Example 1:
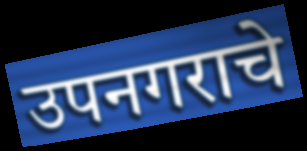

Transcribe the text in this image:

उपनगराचे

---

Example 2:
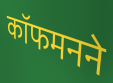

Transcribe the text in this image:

कॉफमनने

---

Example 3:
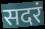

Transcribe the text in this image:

सदरं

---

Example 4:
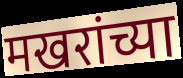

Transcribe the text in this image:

मखरांच्या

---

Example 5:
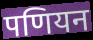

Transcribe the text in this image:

पणियन